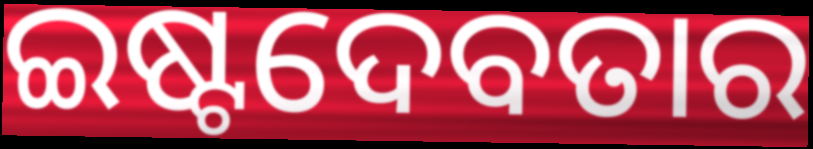
ଇଷ୍ଟଦେବତାର